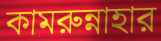
কামরুন্নাহার